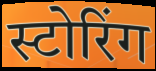
स्टोरिंग